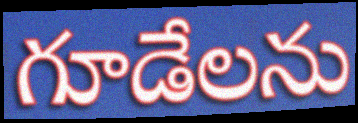
గూడేలను